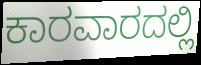
ಕಾರವಾರದಲ್ಲಿ